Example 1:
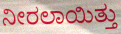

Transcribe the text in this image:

ನೀರಲಾಯಿತ್ತು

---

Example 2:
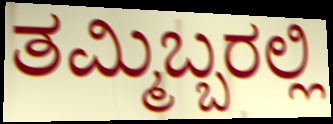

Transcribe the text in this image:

ತಮ್ಮಿಬ್ಬರಲ್ಲಿ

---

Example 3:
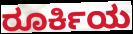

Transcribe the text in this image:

ರೂರ್ಕಿಯ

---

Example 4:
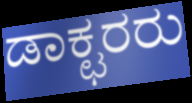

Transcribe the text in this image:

ಡಾಕ್ಟರರು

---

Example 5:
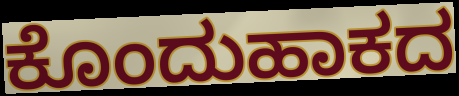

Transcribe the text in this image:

ಕೊಂದುಹಾಕದ